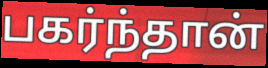
பகர்ந்தான்